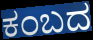
ಕಂಬದ